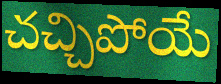
చచ్చిపోయే